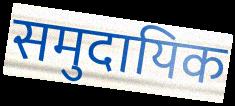
समुदायिक